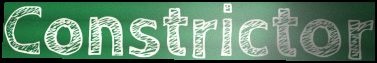
Constrictor